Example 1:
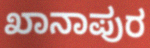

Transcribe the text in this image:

ಖಾನಾಪುರ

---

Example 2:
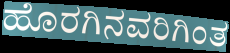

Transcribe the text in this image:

ಹೊರಗಿನವರಿಗಿಂತ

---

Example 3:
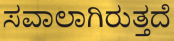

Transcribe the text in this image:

ಸವಾಲಾಗಿರುತ್ತದೆ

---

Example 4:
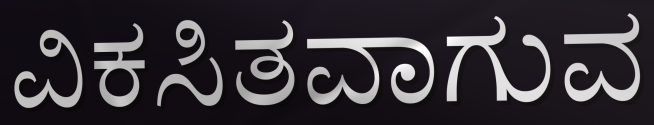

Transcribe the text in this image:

ವಿಕಸಿತವಾಗುವ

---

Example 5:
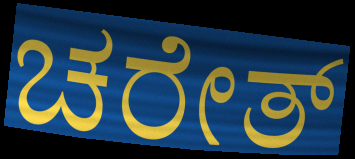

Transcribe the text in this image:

ಚರೇತ್